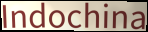
Indochina